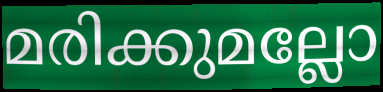
മരിക്കുമല്ലോ